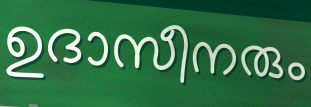
ഉദാസീനരും